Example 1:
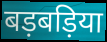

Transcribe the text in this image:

बड़बड़िया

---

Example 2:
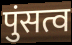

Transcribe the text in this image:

पुंसत्व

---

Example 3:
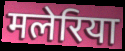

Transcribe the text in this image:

मलेरिया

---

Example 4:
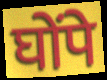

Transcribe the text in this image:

घोंपे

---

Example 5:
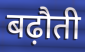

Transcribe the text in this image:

बढ़ौती